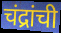
चंद्रांची